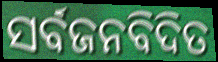
ସର୍ବଜନବିଦିତ